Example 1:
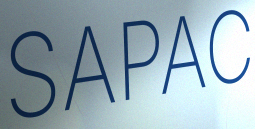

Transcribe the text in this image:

SAPAC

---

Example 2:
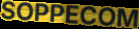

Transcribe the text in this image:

SOPPECOM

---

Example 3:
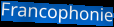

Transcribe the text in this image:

Francophonie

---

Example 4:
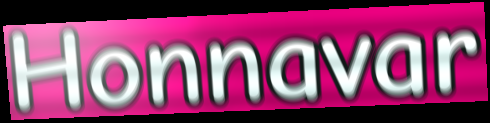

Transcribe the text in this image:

Honnavar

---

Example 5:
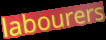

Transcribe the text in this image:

labourers